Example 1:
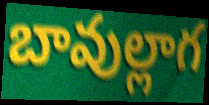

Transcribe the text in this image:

బావుల్లాగ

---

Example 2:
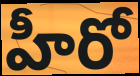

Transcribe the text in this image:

హీరో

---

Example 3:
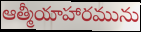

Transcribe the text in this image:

ఆత్మీయాహారమును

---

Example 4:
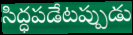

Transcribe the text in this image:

సిద్ధపడేటప్పుడు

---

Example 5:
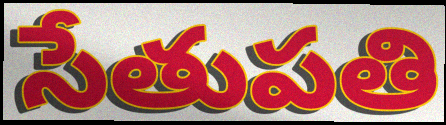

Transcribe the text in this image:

సేతుపతి